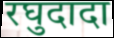
रघुदादा